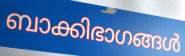
ബാക്കിഭാഗങ്ങൾ